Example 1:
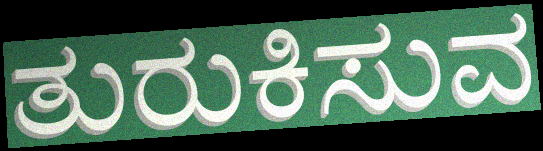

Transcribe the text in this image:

ತುರುಕಿಸುವ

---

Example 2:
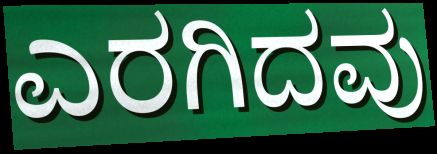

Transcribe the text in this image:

ಎರಗಿದವು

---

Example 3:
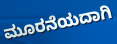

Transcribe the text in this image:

ಮೂರನೆಯದಾಗಿ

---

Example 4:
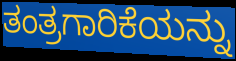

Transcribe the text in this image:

ತಂತ್ರಗಾರಿಕೆಯನ್ನು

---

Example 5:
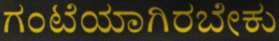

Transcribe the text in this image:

ಗಂಟೆಯಾಗಿರಬೇಕು